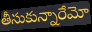
తీసుకున్నారేమో